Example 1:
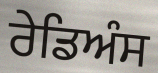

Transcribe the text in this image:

ਰੇਡਿਅੰਸ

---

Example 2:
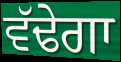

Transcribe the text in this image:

ਵੱਢੇਗਾ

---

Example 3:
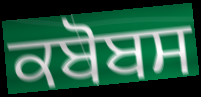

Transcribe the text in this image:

ਕਬੋਬਸ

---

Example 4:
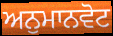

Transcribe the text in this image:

ਅਨੁਮਾਨਵੋਟ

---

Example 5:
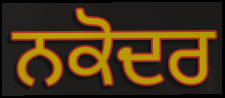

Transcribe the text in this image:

ਨਕੋਦਰ